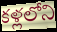
కళ్లలోని